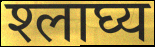
श्लाघ्य